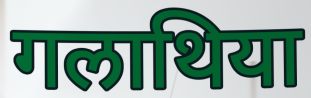
गलाथिया